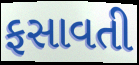
ફસાવતી